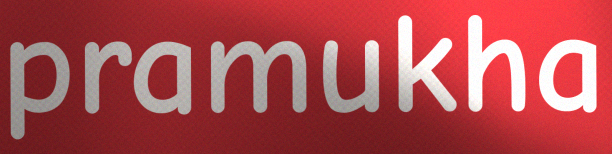
pramukha